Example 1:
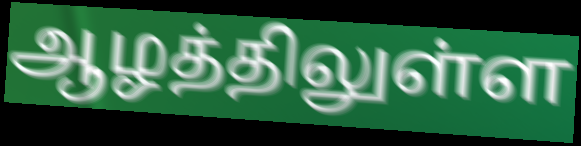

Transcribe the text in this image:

ஆழத்திலுள்ள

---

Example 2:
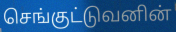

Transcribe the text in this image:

செங்குட்டுவனின்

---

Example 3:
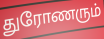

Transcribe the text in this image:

துரோணரும்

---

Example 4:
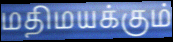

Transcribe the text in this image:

மதிமயக்கும்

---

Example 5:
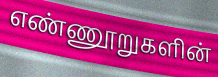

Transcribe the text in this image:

எண்ணூறுகளின்